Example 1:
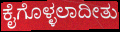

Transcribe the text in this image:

ಕೈಗೊಳ್ಳಲಾದೀತು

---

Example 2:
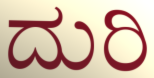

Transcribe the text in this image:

ದುರಿ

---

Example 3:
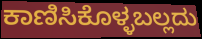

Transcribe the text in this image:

ಕಾಣಿಸಿಕೊಳ್ಳಬಲ್ಲದು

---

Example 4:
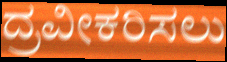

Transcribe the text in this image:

ದ್ರವೀಕರಿಸಲು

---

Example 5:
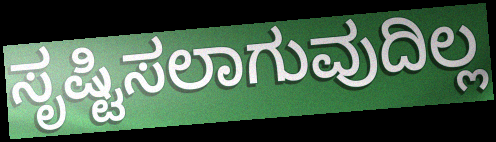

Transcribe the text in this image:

ಸೃಷ್ಟಿಸಲಾಗುವುದಿಲ್ಲ